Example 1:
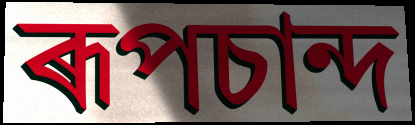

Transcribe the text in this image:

ৰূপচান্দ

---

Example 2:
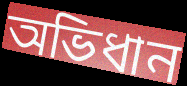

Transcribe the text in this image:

অভিধান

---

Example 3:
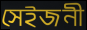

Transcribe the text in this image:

সেইজনী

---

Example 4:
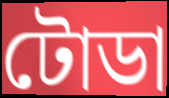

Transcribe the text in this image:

টোডা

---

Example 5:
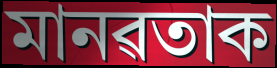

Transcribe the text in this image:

মানৱতাক